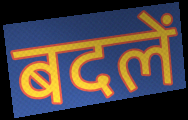
बदलें